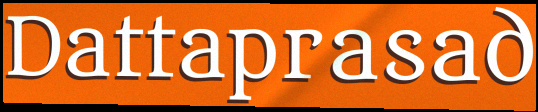
Dattaprasad